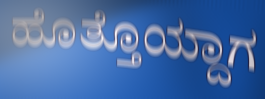
ಹೊತ್ತೊಯ್ದಾಗ